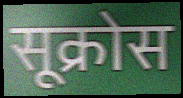
सूक्रोस